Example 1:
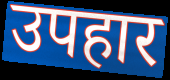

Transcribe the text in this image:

उपहार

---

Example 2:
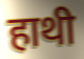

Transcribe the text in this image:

हाथी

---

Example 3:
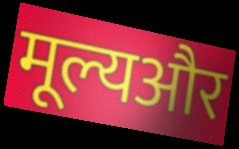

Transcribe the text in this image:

मूल्यऔर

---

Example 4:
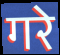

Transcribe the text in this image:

गरे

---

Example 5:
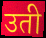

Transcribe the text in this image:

उती